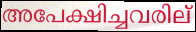
അപേക്ഷിച്ചവരില്